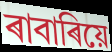
ৰাবাৰিয়ে